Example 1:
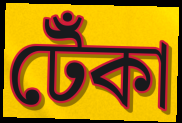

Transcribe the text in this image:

টেঁকা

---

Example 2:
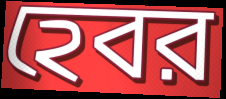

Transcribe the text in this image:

হেবর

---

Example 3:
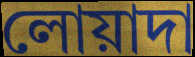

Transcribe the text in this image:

লোয়াদা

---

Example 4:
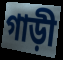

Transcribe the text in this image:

গাড়ী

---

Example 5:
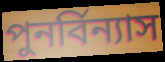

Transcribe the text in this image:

পুনর্বিন্যাস